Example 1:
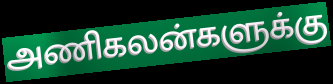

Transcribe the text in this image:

அணிகலன்களுக்கு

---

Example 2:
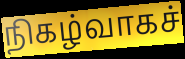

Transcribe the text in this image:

நிகழ்வாகச்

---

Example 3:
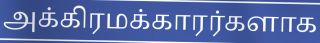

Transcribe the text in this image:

அக்கிரமக்காரர்களாக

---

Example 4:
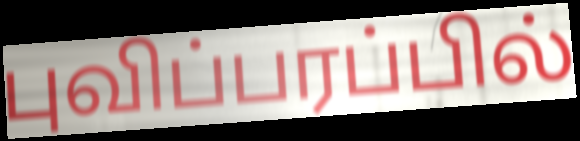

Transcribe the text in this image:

புவிப்பரப்பில்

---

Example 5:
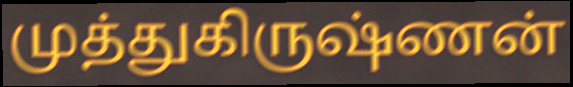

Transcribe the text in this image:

முத்துகிருஷ்ணன்